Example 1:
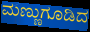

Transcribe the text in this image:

ಮಣ್ಣುಗೂಡಿದ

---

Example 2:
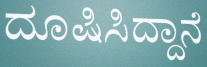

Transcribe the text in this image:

ದೂಷಿಸಿದ್ದಾನೆ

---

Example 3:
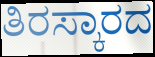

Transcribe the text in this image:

ತಿರಸ್ಕಾರದ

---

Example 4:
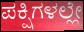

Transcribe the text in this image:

ಪಕ್ಷಿಗಳಲ್ಲೇ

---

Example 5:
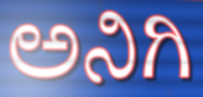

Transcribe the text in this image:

ಅನಿಗಿ